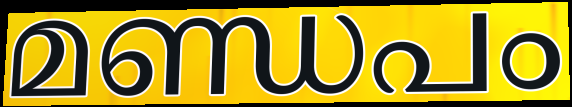
മണ്ഡപം